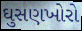
ઘુસણખોરો